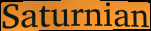
Saturnian